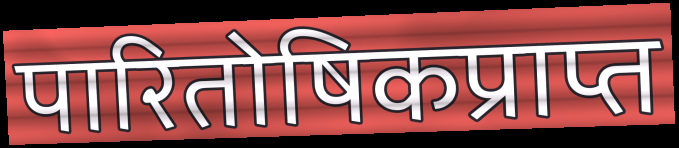
पारितोषिकप्राप्त